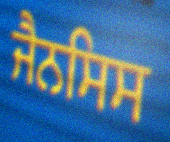
ਜੈਨਸਿਸ